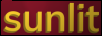
sunlit